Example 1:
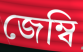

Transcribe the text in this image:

জেম্বি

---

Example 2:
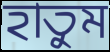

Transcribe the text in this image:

হাতুম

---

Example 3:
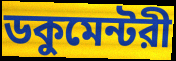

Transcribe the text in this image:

ডকুমেন্টরী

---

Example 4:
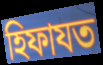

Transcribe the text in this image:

হিফাযত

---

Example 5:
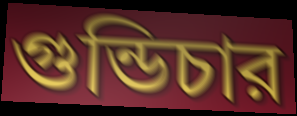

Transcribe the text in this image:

গুন্ডিচার